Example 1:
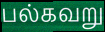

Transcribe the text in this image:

பல்கவறு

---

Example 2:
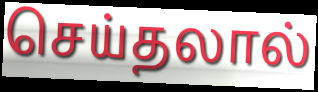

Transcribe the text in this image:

செய்தலால்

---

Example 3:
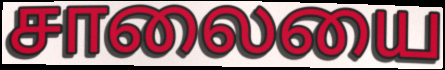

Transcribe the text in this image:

சாலையை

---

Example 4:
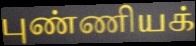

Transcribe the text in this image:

புண்ணியக்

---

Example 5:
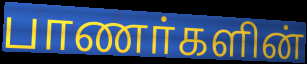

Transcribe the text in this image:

பாணர்களின்